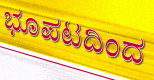
ಭೂಪಟದಿಂದ